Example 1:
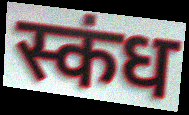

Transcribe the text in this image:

स्कंध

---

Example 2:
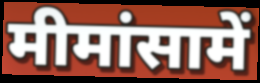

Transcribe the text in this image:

मीमांसामें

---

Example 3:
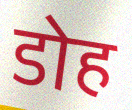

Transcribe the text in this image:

डोह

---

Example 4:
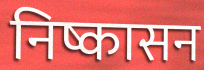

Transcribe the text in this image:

निष्कासन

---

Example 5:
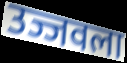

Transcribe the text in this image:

उज्जवला